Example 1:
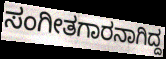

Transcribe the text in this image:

ಸಂಗೀತಗಾರನಾಗಿದ್ದ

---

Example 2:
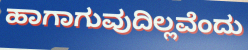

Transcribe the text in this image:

ಹಾಗಾಗುವುದಿಲ್ಲವೆಂದು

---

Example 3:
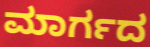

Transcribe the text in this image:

ಮಾರ್ಗದ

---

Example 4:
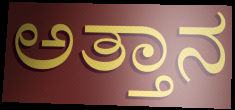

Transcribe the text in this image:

ಅತ್ತಾನ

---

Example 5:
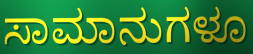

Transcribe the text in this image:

ಸಾಮಾನುಗಳೂ